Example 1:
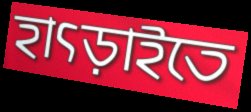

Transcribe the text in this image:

হাৎড়াইতে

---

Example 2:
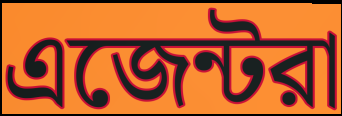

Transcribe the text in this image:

এজেন্টরা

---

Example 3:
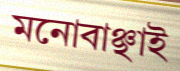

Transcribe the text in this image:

মনোবাঞ্ছাই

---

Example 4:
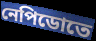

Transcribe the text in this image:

নেপিডোতে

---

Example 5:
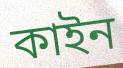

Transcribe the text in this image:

কাইন